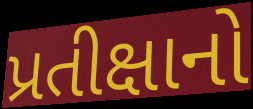
પ્રતીક્ષાનો